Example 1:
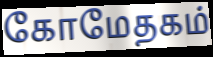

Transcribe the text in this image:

கோமேதகம்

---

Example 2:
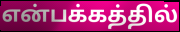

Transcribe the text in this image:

என்பக்கத்தில்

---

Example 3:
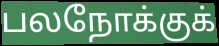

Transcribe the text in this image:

பலநோக்குக்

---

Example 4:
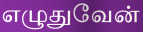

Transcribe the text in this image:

எழுதுவேன்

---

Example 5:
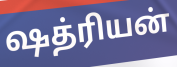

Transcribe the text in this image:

ஷத்ரியன்